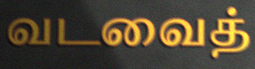
வடவைத்